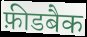
फ़ीडबैक